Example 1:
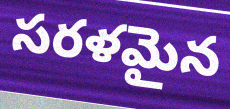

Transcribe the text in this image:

సరళమైన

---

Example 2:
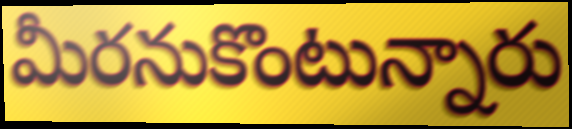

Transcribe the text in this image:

మీరనుకొంటున్నారు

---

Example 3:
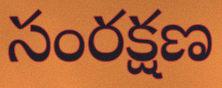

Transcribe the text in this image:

సంరక్షణ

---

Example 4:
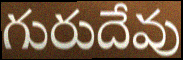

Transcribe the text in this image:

గురుదేవు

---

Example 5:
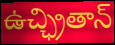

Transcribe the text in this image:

ఉచ్ఛ్రితాన్